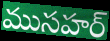
ముసహర్